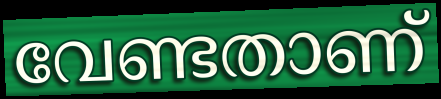
വേണ്ടതാണ്